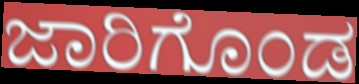
ಜಾರಿಗೊಂಡ